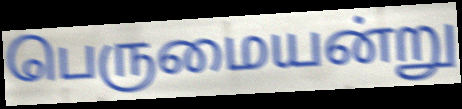
பெருமையன்று